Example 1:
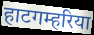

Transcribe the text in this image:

हाटगम्हरिया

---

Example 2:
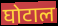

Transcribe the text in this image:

घोटाल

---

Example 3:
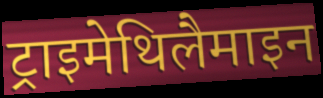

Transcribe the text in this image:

ट्राइमेथिलैमाइन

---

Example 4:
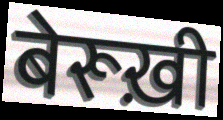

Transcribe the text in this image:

बेरूख़ी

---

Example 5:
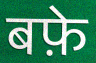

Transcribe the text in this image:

बफ़े